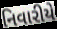
નિવારીયે